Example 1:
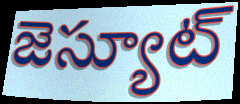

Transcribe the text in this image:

జెస్యూట్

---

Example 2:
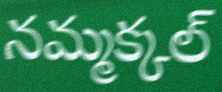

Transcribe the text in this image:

నమ్మక్కల్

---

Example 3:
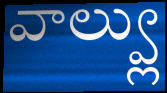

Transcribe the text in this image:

వాల్వ్లు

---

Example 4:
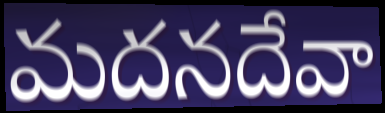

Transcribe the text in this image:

మదనదేవా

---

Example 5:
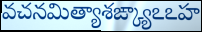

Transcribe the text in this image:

వచనమిత్యాశఙ్క్యాఽఽహ